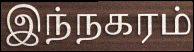
இந்நகரம்